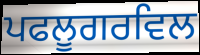
ਪਫਲੂਗਰਵਿਲ